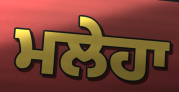
ਮਲੇਹਾ